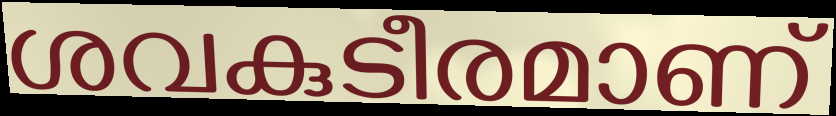
ശവകുടീരമാണ്